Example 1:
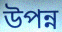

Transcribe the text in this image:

উপন্ন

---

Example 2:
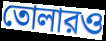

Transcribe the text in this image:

তোলারও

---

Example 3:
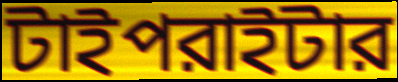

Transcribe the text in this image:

টাইপরাইটার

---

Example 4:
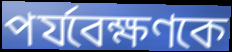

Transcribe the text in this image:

পর্যবেক্ষণকে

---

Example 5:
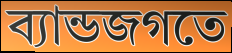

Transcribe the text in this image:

ব্যান্ডজগতে